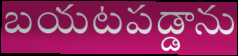
బయటపడ్డాను